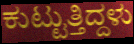
ಕುಟ್ಟುತ್ತಿದ್ದಳು